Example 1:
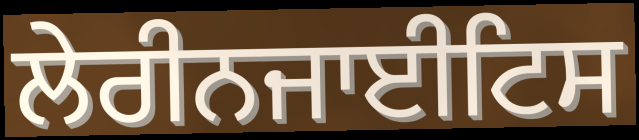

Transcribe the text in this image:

ਲੇਰੀਨਜਾਈਟਿਸ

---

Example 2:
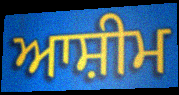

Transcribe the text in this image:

ਆਸ਼ੀਮ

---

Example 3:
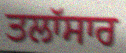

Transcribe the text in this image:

ਤਲਾੱਸਾਰ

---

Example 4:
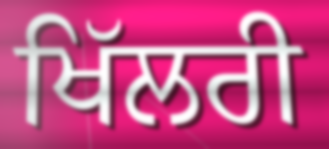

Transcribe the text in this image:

ਖਿੱਲਰੀ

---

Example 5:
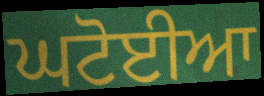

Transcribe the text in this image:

ਘਟੋਈਆ